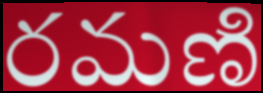
రమణి